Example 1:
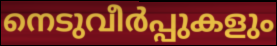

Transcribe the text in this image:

നെടുവീർപ്പുകളും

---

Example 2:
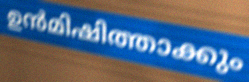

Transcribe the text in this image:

ഉൻമിഷിത്താക്കും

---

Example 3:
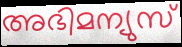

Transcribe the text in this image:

അഭിമന്യുസ്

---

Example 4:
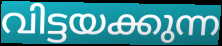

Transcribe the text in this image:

വിട്ടയക്കുന്ന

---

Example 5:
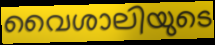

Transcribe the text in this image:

വൈശാലിയുടെ